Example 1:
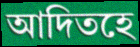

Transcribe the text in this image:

আদিতহে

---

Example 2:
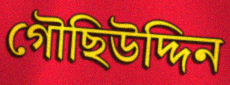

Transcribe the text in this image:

গৌছিউদ্দিন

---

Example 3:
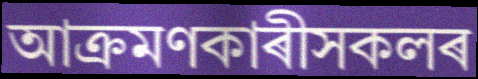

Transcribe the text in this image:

আক্ৰমণকাৰীসকলৰ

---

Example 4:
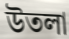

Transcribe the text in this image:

উতলা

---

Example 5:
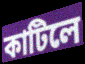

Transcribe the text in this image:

কাটিলে